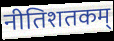
नीतिशतकम्